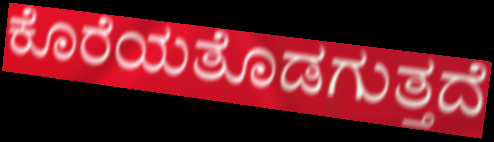
ಕೊರೆಯತೊಡಗುತ್ತದೆ